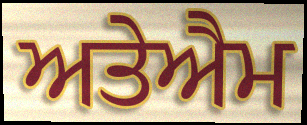
ਅਤੇਐਮ